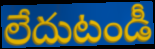
లేదుటండీ